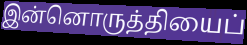
இன்னொருத்தியைப்